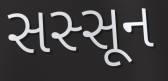
સસ્સૂન